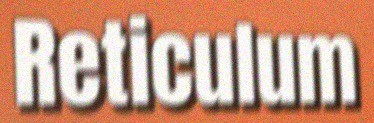
Reticulum